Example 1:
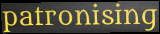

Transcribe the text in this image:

patronising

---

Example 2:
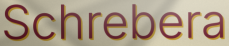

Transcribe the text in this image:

Schrebera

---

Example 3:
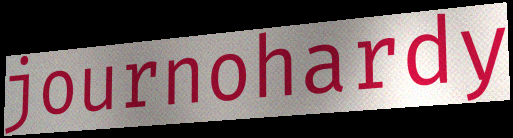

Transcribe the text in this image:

journohardy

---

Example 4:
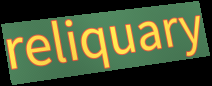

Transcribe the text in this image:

reliquary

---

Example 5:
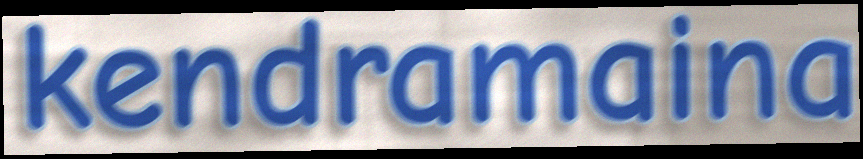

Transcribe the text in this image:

kendramaina